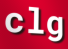
clg